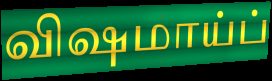
விஷமாய்ப்